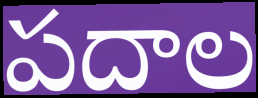
పదాల